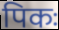
पिकः